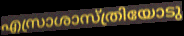
എസ്രാശാസ്ത്രിയോടു